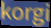
korgi